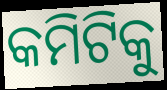
କମିଟିକୁ